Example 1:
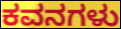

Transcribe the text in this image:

ಕವನಗಳು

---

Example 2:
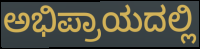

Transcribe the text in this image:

ಅಭಿಪ್ರಾಯದಲ್ಲಿ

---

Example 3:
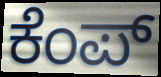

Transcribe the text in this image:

ಕೆಂಪ್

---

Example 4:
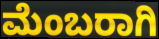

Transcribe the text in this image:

ಮೆಂಬರಾಗಿ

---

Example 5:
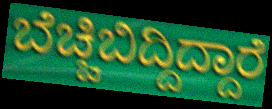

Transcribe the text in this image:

ಬೆಚ್ಚಿಬಿದ್ದಿದ್ದಾರೆ